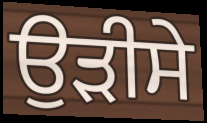
ਉੜੀਸੇ